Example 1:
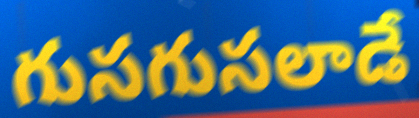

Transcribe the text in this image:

గుసగుసలాడే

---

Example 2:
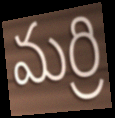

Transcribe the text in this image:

మర్రి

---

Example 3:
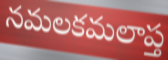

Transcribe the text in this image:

నమలకమలాప్త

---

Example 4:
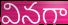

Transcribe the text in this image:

వినగా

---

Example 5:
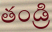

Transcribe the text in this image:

తండ్రి